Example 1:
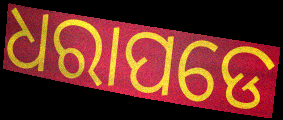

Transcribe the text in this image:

ଧରାପଡେ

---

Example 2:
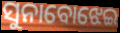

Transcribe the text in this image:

ସୁନାବୋଝେଇ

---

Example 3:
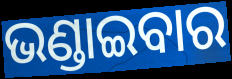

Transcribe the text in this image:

ଭଣ୍ଡାଇବାର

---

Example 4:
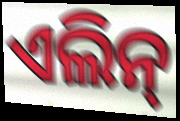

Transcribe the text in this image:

ଏଲିନ୍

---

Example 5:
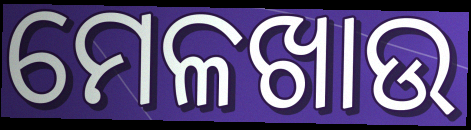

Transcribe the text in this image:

ମେଳଖାଉ